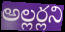
అల్లర్లని